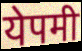
येपमी